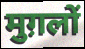
मुग़लों